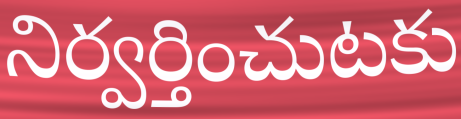
నిర్వర్తించుటకు